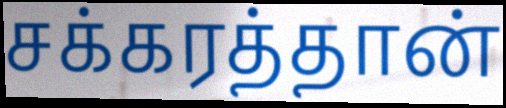
சக்கரத்தான்